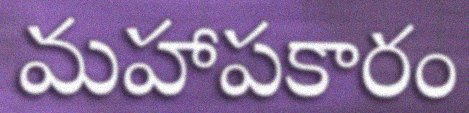
మహాపకారం